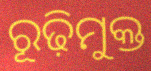
ରୂଢ଼ିମୁକ୍ତ